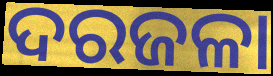
ଦରଜଳା